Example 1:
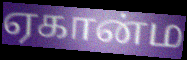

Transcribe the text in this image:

ஏகான்ம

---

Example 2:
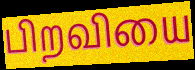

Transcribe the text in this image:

பிறவியை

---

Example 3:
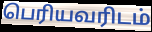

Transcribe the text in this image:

பெரியவரிடம்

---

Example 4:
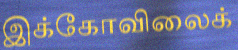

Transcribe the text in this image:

இக்கோவிலைக்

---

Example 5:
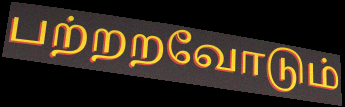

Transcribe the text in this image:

பற்றறவோடும்